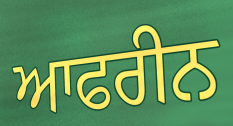
ਆਫਰੀਨ